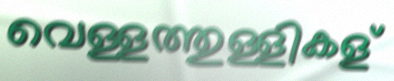
വെള്ളത്തുള്ളികള്